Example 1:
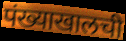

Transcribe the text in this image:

पंख्याखालची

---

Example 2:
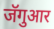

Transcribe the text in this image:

जॅगुआर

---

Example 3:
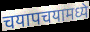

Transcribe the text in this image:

चयापचयामध्ये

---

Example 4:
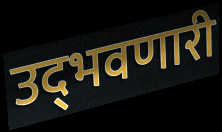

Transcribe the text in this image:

उद्भवणारी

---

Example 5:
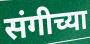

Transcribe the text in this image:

संगीच्या